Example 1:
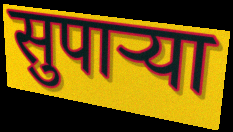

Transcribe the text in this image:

सुपार्‍या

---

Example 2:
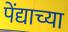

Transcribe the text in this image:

पेंद्याच्या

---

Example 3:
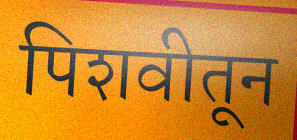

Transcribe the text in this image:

पिशवीतून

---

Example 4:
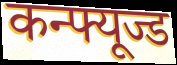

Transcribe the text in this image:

कन्फ्यूज्ड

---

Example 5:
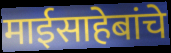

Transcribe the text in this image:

माईसाहेबांचे